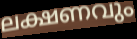
ലക്ഷണവും